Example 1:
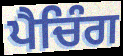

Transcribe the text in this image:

ਪੈਚਿੰਗ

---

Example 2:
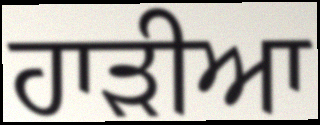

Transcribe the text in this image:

ਹਾੜੀਆ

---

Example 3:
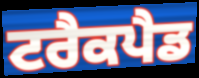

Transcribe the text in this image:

ਟਰੈਕਪੈਡ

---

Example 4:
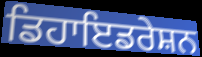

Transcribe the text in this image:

ਡਿਹਾਇਡਰੇਸ਼ਨ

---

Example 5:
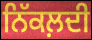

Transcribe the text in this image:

ਨਿੱਕਲ਼ਦੀ